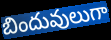
బిందువులుగా